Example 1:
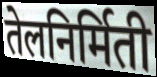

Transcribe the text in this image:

तेलनिर्मिती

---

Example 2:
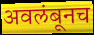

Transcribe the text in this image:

अवलंबूनच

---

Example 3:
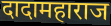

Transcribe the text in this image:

दादामहाराज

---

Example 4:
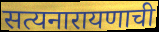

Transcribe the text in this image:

सत्यनारायणाची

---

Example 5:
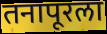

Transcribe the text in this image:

तनापूरला